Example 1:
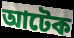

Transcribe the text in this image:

আটেক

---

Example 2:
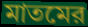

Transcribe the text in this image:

মাতমের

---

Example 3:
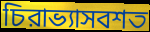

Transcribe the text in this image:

চিরাভ্যাসবশত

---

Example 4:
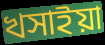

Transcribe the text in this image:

খসাইয়া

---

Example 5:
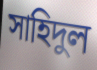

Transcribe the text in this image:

সাহিদুল